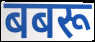
बबरू